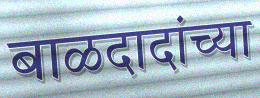
बाळदादांच्या